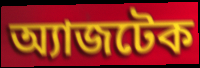
অ্যাজটেক